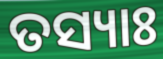
ତସ୍ୟାଃ